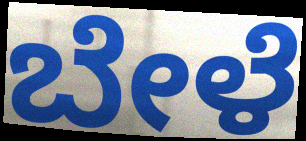
ಬೇಳೆ